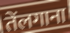
तेंलगाना